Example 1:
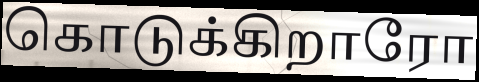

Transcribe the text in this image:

கொடுக்கிறாரோ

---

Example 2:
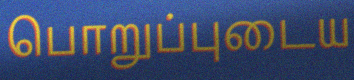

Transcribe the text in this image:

பொறுப்புடைய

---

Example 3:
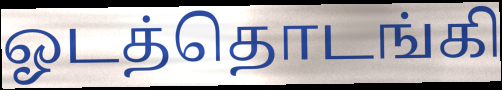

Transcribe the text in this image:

ஓடத்தொடங்கி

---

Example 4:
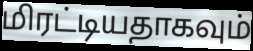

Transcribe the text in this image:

மிரட்டியதாகவும்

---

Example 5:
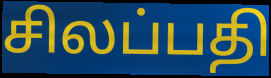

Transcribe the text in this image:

சிலப்பதி